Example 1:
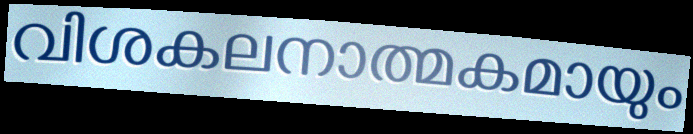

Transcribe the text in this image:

വിശകലനാത്മകമായും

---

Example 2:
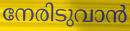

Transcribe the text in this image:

നേരിടുവാൻ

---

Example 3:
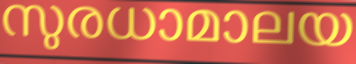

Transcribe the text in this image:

സുരധാമാലയ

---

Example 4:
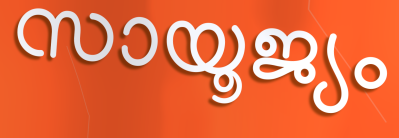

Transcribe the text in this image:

സായൂജ്യം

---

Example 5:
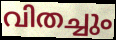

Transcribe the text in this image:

വിതച്ചും